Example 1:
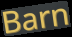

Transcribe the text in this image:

Barn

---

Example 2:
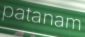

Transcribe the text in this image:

patanam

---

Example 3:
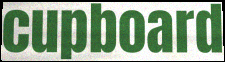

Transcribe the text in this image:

cupboard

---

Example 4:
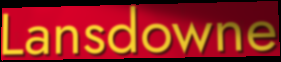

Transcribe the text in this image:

Lansdowne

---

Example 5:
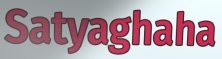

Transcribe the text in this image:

Satyaghaha